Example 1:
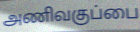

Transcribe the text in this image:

அணிவகுப்பை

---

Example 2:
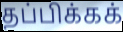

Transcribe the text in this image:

தப்பிக்கக்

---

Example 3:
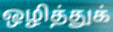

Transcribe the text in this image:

ஒழித்துக்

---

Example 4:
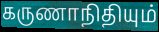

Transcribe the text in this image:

கருணாநிதியும்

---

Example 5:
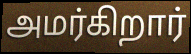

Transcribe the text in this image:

அமர்கிறார்